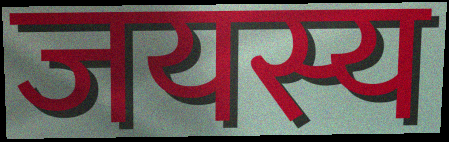
जयस्य